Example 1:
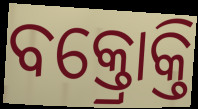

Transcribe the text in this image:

ବକ୍ତ୍ରୋକ୍ତି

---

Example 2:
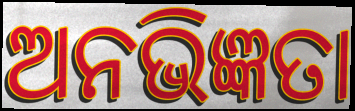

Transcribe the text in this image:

ଅନଭିଜ୍ଞତା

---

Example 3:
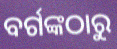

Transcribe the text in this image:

ବର୍ଗଙ୍କଠାରୁ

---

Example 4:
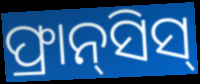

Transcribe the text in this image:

ଫ୍ରାନ୍‌ସିସ୍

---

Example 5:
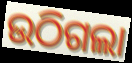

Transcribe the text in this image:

ଉଠିଗଲା